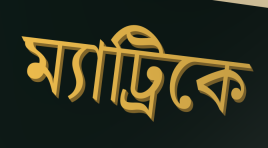
ম্যাট্রিকে